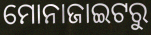
ମୋନାଜାଇଟରୁ